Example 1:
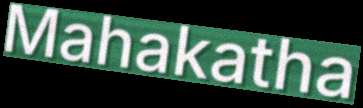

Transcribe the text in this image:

Mahakatha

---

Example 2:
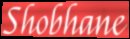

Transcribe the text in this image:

Shobhane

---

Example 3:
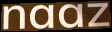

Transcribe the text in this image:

naaz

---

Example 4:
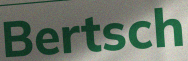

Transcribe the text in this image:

Bertsch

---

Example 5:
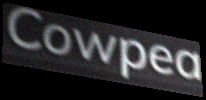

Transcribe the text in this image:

Cowpea